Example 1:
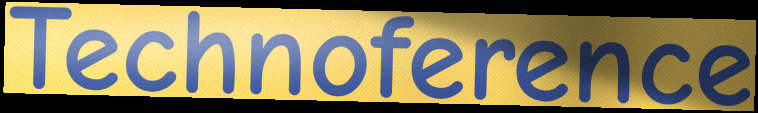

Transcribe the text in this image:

Technoference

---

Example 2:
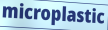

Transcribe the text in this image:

microplastic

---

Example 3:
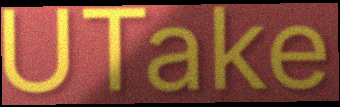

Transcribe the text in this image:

UTake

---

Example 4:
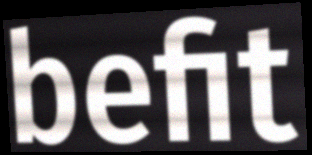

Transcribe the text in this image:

befit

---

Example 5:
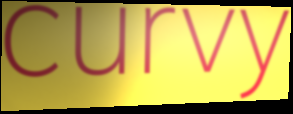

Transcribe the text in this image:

curvy